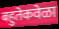
बहुतेकवेळा